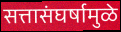
सत्तासंघर्षामुळे